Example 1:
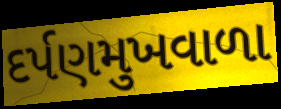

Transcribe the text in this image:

દર્પણમુખવાળા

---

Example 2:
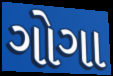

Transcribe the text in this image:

ગોગા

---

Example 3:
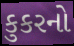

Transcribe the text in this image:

કુકરનો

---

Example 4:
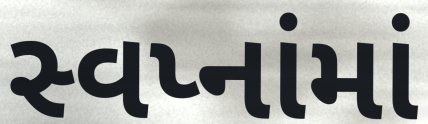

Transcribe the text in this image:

સ્વપ્નાંમાં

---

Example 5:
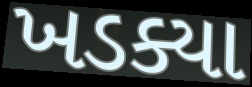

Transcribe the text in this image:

ખડક્યા